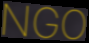
NGO